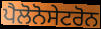
ਪੈਲੋਨੋਸੇਟਰੋਨ